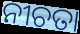
ନୀଚତା